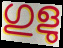
ഗുളു